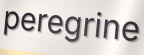
peregrine